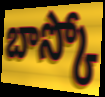
బాస్కో